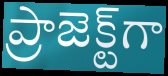
ప్రాజెక్ట్‌గా